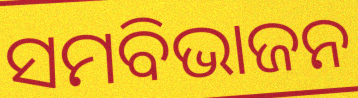
ସମବିଭାଜନ